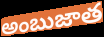
అంబుజాత